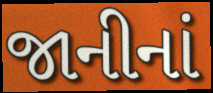
જાનીનાં